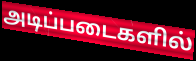
அடிப்படைகளில்